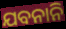
ଯବନାନି